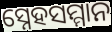
ସ୍ନେହସମ୍ମାନ